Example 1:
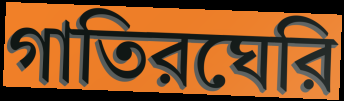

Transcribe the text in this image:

গাতিরঘেরি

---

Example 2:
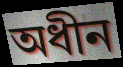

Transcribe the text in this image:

অধীন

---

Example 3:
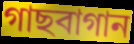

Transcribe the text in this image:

গাছবাগান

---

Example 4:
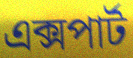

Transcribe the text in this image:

এক্সপার্ট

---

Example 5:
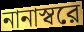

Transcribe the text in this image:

নানাস্বরে